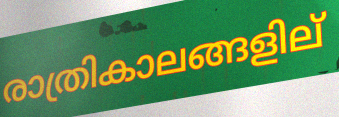
രാത്രികാലങ്ങളില്